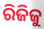
ରିଜିଜୁ